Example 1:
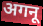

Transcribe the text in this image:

अगनू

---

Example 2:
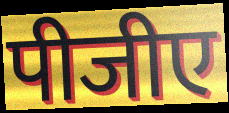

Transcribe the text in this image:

पीजीए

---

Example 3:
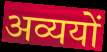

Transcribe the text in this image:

अव्ययों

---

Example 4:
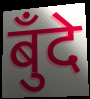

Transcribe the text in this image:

बुँदे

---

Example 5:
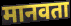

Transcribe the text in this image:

मानवता